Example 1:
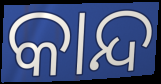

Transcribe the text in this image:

କାନ୍ଦ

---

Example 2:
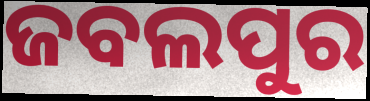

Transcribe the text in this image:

ଜବଲପୁର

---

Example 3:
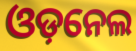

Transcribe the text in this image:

ଓଡ଼ନେଲ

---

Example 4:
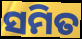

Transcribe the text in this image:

ସମିତ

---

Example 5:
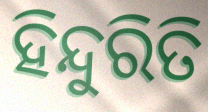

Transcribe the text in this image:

ହିନ୍ଦୁରିତି